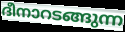
ദീനാറടങ്ങുന്ന